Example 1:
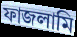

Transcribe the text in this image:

ফাজলামি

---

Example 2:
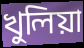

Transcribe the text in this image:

খুলিয়া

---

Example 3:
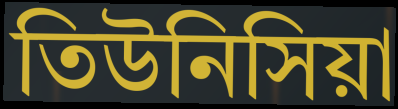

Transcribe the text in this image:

তিউনিসিয়া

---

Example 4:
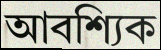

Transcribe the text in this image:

আবশ্যিক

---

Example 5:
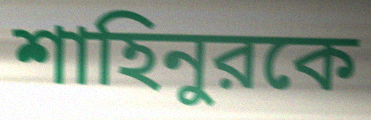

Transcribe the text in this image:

শাহিনুরকে